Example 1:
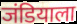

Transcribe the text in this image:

जंडियाला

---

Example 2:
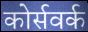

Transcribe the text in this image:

कोर्सवर्क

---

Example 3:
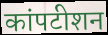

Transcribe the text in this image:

कांपटीशन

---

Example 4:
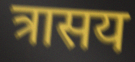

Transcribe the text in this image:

त्रासय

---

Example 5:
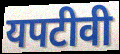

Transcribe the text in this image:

यपटीवी